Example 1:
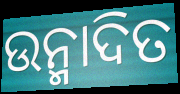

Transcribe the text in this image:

ଉନ୍ମାଦିତ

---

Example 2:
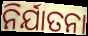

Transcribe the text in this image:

ନିର୍ଯାତନା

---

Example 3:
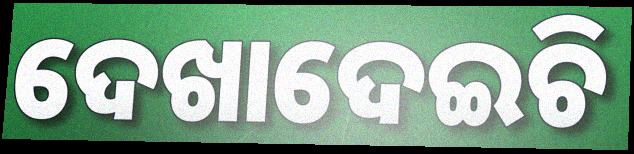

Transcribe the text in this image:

ଦେଖାଦେଇଚି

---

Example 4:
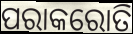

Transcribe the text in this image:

ପରାକରୋତି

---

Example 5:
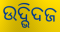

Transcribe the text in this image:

ଉଦ୍ଭିଦଜ